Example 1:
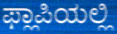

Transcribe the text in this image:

ಫ್ಲಾಪಿಯಲ್ಲಿ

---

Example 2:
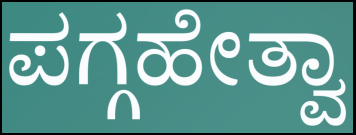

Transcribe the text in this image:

ಪಗ್ಗಹೇತ್ವಾ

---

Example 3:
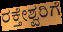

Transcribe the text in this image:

ರಕ್ತೇಶ್ವರಿಗೆ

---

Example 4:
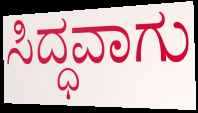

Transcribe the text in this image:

ಸಿದ್ಧವಾಗು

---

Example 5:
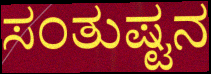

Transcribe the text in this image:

ಸಂತುಷ್ಟನ